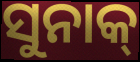
ସୁନାକ୍